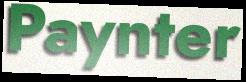
Paynter